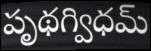
పృథగ్విధమ్